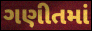
ગણીતમાં